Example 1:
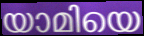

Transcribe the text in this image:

യാമിയെ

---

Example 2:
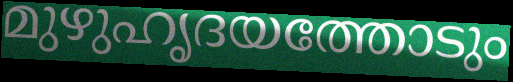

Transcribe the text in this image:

മുഴുഹൃദയത്തോടും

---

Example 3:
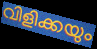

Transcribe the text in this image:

വിളിക്കയും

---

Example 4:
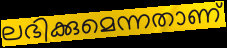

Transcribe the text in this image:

ലഭിക്കുമെന്നതാണ്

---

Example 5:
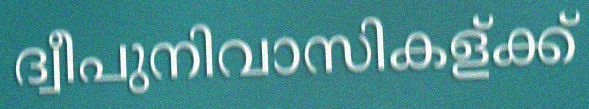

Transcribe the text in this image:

ദ്വീപുനിവാസികള്ക്ക്